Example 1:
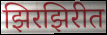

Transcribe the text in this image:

झिरझिरीत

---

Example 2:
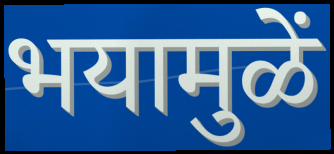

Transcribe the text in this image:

भयामुळें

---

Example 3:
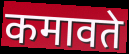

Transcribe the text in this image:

कमावते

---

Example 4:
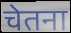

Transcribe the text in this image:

चेतना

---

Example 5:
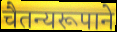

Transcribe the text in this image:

चैतन्यरूपाने